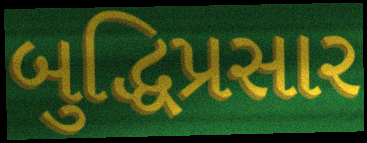
બુદ્ધિપ્રસાર